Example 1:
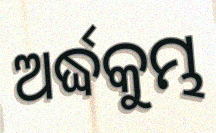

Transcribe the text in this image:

ଅର୍ଦ୍ଧକୁମ୍ଭ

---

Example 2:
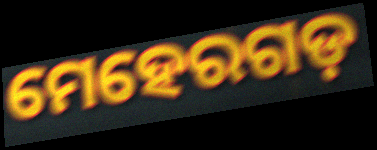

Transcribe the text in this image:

ମେହେରଗଡ଼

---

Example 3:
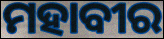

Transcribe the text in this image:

ମହାବୀର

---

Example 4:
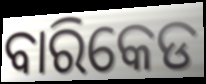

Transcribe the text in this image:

ବାରିକେଡ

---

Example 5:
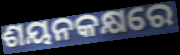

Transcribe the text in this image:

ଶୟନକକ୍ଷରେ